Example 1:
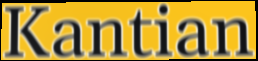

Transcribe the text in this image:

Kantian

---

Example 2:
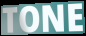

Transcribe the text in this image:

TONE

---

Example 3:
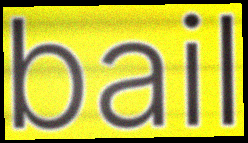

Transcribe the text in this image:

bail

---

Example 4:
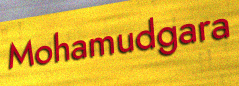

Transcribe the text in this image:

Mohamudgara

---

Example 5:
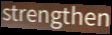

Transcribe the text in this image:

strengthen